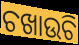
ଚଖାଉଚି